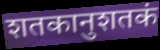
शतकानुशतकं